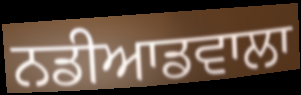
ਨਡੀਆਡਵਾਲਾ